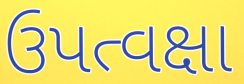
ઉપત્વક્ષા